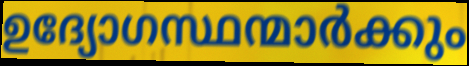
ഉദ്യോഗസ്ഥന്മാർക്കും